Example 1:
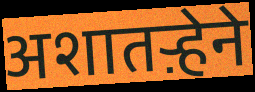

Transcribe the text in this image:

अशातऱ्‍हेने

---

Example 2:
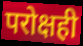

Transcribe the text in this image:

परोक्षही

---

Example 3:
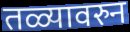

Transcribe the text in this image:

तळ्यावरुन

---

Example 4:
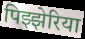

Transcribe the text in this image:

पिझ्झेरिया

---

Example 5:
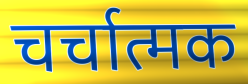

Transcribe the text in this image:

चर्चात्मक